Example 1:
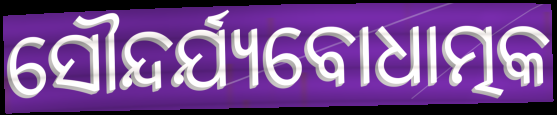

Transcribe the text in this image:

ସୌନ୍ଦର୍ଯ୍ୟବୋଧାତ୍ମକ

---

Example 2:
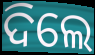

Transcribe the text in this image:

ଦିଲେ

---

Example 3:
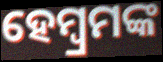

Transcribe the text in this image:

ହେମ୍ବ୍ରମଙ୍କ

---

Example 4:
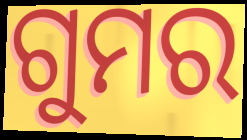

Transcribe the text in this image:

ଗୁମର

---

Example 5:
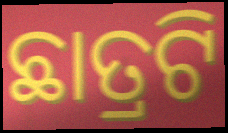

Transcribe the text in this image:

ଛାତ୍ରଟି